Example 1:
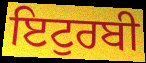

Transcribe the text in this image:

ਇਟੁਰਬੀ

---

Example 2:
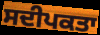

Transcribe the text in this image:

ਸਦੀਪਕਤਾ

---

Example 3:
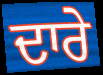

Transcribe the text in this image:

ਦਾਰੇ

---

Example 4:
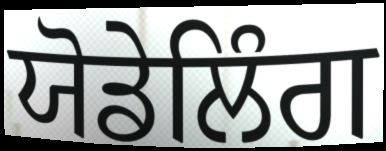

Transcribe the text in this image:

ਯੋਡੇਲਿੰਗ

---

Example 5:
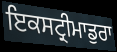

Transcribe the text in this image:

ਇਕਸਟ੍ਰੀਮਾਡੁਰਾ